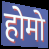
होमो